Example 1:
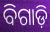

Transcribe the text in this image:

ବିଗାଡ଼ି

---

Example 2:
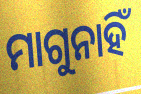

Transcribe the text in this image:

ମାଗୁନାହିଁ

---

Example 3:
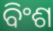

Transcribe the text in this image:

ବିଂଶ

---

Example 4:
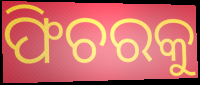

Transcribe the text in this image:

ଫିଚରକୁ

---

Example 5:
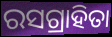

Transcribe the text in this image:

ରସଗ୍ରାହିତା